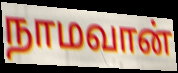
நாமவான்